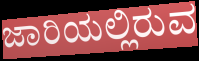
ಜಾರಿಯಲ್ಲಿರುವ